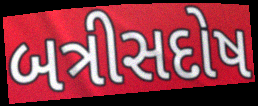
બત્રીસદોષ